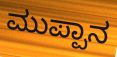
ಮುಪ್ಪಾನ